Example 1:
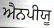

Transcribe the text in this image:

ਐਨਪੀਯੂ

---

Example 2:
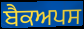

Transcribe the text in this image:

ਬੈਕਅਪਸ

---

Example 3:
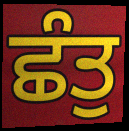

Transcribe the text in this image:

ਛੰਤੁ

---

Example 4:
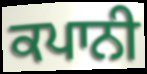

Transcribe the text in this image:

ਕਪਾਨੀ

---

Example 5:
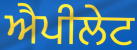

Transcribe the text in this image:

ਐਪੀਲੇਟ